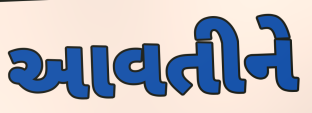
આવતીને